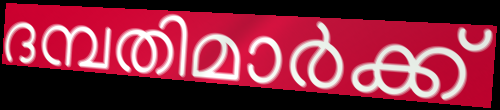
ദമ്പതിമാർക്ക്